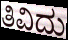
ತಿವಿದು